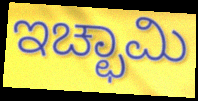
ಇಚ್ಛಾಮಿ